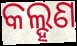
କଲ୍ହଣ